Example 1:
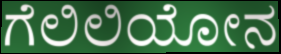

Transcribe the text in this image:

ಗೆಲಿಲಿಯೋನ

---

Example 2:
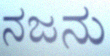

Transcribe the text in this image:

ನಜನು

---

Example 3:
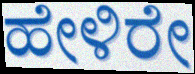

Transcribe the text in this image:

ಹೇಳಿರೇ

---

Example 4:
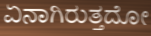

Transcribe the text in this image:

ಏನಾಗಿರುತ್ತದೋ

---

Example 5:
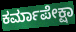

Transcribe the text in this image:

ಕರ್ಮಾಪೇಕ್ಷಾ